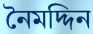
নৈমদ্দিন